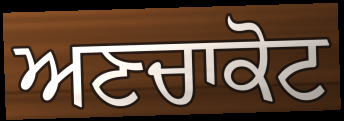
ਅਣਚਾਕੋਟ